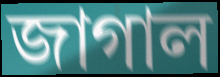
জাগাল